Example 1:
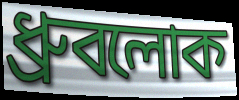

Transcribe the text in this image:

ধ্রুবলোক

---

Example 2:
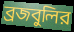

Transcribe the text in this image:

ব্রজবুলির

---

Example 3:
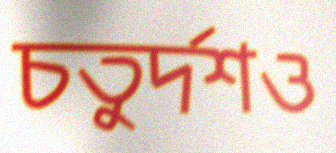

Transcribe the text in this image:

চতুর্দশও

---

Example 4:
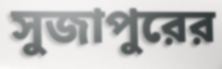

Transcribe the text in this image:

সুজাপুরের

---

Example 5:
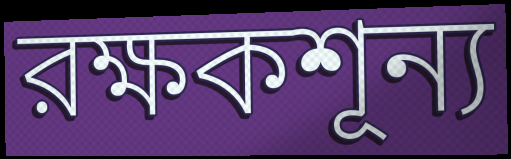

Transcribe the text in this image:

রক্ষকশূন্য